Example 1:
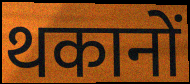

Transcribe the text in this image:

थकानों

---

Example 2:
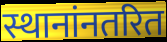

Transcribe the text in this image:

स्थानांनतरित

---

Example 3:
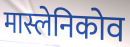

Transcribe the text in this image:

मास्लेनिकोव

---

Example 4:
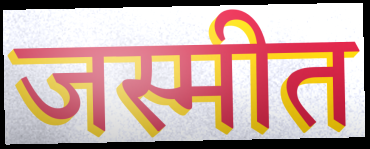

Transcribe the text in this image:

जस्मीत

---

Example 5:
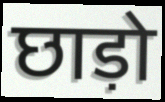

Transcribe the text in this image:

छाड़ो